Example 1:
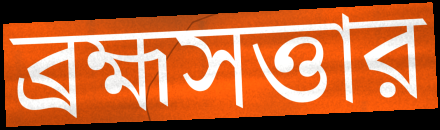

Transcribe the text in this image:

ব্রহ্মসত্তার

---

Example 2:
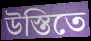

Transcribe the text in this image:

উস্তিতে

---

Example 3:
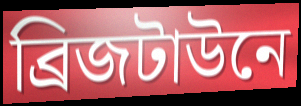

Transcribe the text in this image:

ব্রিজটাউনে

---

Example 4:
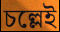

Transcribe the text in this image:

চল্লেই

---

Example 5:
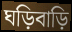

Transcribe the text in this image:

ঘড়িবাড়ি